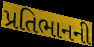
પ્રતિભાનની